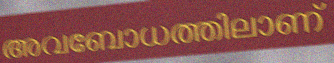
അവബോധത്തിലാണ്